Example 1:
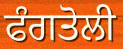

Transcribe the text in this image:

ਫੰਗਤੋਲੀ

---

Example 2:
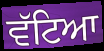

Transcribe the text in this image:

ਵੱਟਿਆ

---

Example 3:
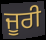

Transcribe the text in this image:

ਜੂਰੀ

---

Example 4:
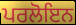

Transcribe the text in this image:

ਪਰਲੋਇਨ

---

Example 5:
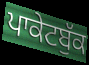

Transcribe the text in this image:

ਪਾਕੇਟਬੁੱਕ